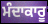
ਮੰਦਾਕਾਰੂ